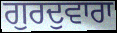
ਗੁਰਦੁਵਾਰਾ